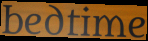
bedtime